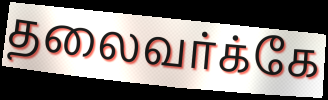
தலைவர்க்கே